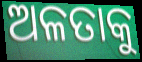
ଅଳତାକୁ